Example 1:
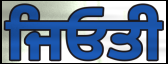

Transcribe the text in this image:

ਜਿਓਤੀ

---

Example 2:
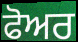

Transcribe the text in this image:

ਫੋਅਰ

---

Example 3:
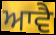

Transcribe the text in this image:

ਆਵੈ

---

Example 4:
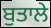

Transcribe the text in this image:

ਬੁਤਾਲੇ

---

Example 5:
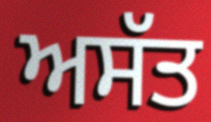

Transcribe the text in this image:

ਅਸੱਤ